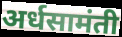
अर्धसामंती